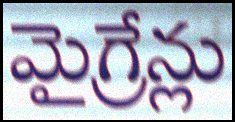
మైగ్రేన్లు